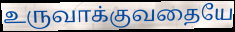
உருவாக்குவதையே